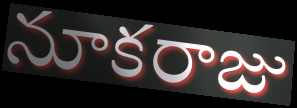
నూకరాజు